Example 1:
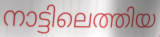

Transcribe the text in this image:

നാട്ടിലെത്തിയ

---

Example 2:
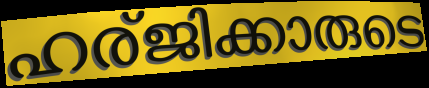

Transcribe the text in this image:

ഹര്ജിക്കാരുടെ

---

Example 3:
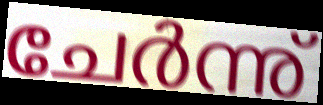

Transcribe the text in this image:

ചേർന്നു്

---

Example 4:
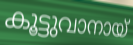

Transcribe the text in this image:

കൂട്ടുവാനായ്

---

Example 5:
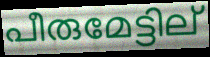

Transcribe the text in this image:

പീരുമേട്ടില്